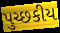
પુચ્છકીય